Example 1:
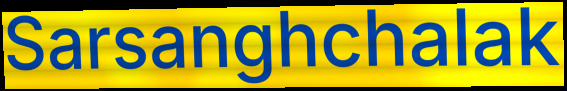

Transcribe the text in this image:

Sarsanghchalak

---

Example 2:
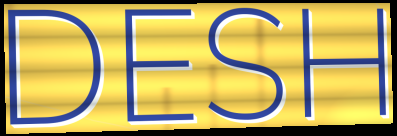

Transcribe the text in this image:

DESH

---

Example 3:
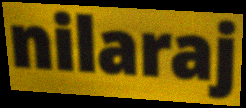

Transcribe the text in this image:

nilaraj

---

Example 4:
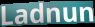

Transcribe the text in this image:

Ladnun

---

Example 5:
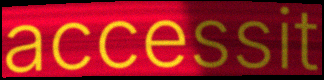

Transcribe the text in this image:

accessit